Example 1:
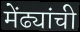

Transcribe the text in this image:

मेंढ्यांची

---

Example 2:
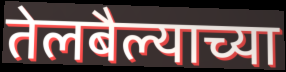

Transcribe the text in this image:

तेलबैल्याच्या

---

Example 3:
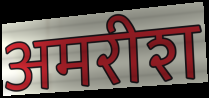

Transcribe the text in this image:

अमरीश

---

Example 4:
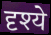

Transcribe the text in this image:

दृश्‍ये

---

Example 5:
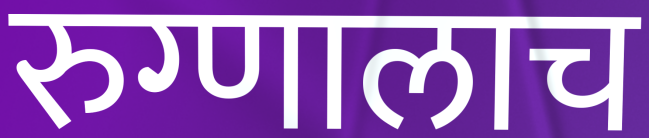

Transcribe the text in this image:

रुग्णालाच